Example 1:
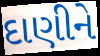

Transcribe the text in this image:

દાણીને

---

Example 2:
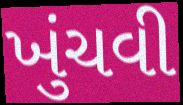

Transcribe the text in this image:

ખુંચવી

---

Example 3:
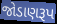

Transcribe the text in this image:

જોડાણરૂપ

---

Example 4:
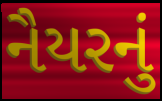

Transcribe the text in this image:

નૈયરનું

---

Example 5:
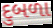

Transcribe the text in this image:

દુબળા